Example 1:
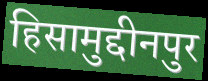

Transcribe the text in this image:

हिसामुद्दीनपुर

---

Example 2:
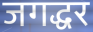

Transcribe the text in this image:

जगद्धर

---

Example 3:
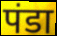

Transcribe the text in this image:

पंडा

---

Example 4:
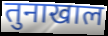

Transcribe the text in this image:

तुनाखाल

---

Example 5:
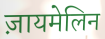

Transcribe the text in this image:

ज़ायमेलिन